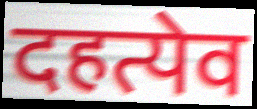
दहत्येव